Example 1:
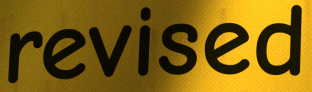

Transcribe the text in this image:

revised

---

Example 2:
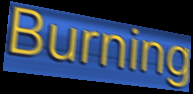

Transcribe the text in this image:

Burning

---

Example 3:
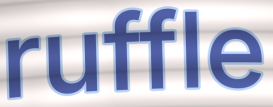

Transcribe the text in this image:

ruffle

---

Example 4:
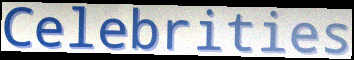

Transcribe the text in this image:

Celebrities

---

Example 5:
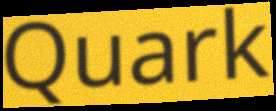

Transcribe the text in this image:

Quark